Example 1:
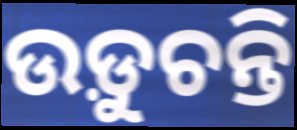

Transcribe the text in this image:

ଉଡ଼ୁଚନ୍ତି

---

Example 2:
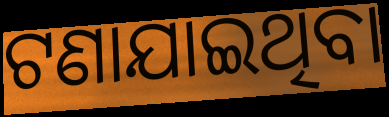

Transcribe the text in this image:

ଟଣାଯାଇଥିବା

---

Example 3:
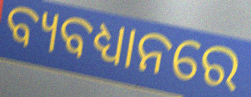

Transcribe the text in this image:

ବ୍ୟବଧ୍ୟାନରେ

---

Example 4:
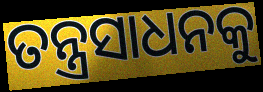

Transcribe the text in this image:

ତନ୍ତ୍ରସାଧନକୁ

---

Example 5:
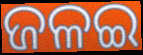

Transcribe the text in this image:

ଜଳଇ